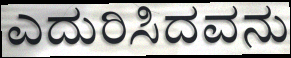
ಎದುರಿಸಿದವನು